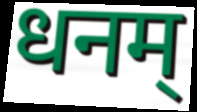
धनम्